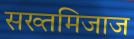
सख्तमिजाज